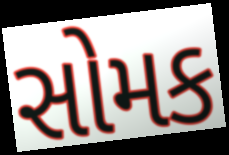
સોમક